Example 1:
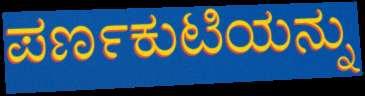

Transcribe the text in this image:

ಪರ್ಣಕುಟಿಯನ್ನು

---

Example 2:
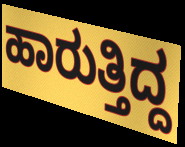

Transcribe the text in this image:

ಹಾರುತ್ತಿದ್ದ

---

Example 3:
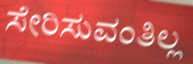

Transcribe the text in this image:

ಸೇರಿಸುವಂತಿಲ್ಲ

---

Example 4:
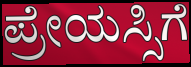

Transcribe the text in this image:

ಪ್ರೇಯಸ್ಸಿಗೆ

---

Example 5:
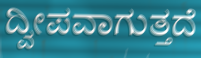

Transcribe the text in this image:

ದ್ವೀಪವಾಗುತ್ತದೆ